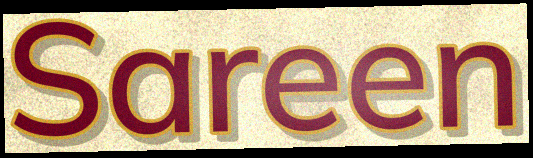
Sareen